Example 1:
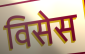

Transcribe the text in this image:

विसेस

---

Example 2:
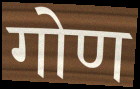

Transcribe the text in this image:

गोण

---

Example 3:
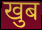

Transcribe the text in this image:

खुब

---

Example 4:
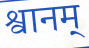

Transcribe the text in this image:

श्वानम्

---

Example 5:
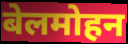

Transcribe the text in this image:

बेलमोहन